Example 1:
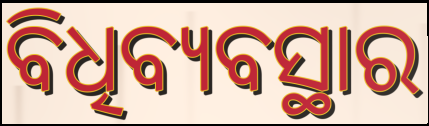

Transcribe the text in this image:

ବିଧିବ୍ୟବସ୍ଥାର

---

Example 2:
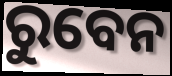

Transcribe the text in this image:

ରୁବେନ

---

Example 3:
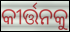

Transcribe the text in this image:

କୀର୍ତ୍ତନକୁ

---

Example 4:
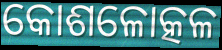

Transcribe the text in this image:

କୋଶଳୋତ୍କଳ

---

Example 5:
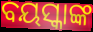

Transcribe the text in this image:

ବୟସ୍କାଙ୍କ